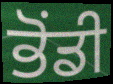
ਭੋਂਡੀ